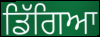
ਡਿੱਗਿਆ